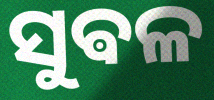
ସୁଵଳ